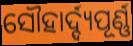
ସୌହାର୍ଦ୍ଦ୍ୟପୂର୍ଣ୍ଣ